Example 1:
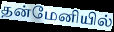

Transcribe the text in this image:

தன்மேனியில்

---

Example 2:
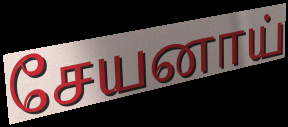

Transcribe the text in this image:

சேயனாய்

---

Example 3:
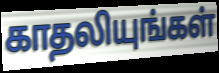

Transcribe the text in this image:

காதலியுங்கள்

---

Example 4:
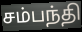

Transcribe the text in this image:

சம்பந்தி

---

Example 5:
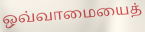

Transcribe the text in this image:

ஒவ்வாமையைத்